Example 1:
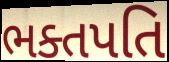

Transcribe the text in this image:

ભક્તપતિ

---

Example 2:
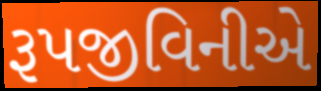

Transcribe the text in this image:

રૂપજીવિનીએ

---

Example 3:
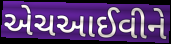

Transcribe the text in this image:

એચઆઈવીને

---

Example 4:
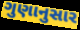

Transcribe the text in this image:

ગુણાનુસાર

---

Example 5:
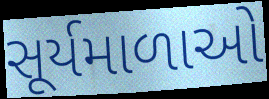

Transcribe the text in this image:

સૂર્યમાળાઓ